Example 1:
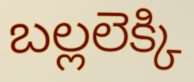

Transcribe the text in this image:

బల్లలెక్కి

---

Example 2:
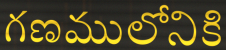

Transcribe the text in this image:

గణములోనికి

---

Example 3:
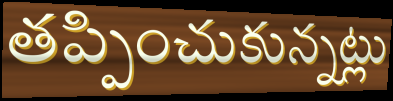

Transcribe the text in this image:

తప్పించుకున్నట్లు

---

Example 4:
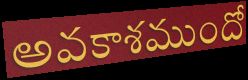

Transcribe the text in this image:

అవకాశముందో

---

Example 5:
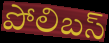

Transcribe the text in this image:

పోలిబస్